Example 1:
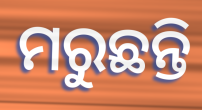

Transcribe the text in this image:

ମରୁଛନ୍ତି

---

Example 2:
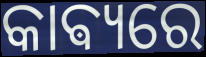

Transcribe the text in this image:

କାଵ୍ଯରେ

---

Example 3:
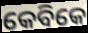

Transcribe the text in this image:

କେବିକେ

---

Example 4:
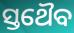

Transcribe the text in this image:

ସ୍ତଥୈବ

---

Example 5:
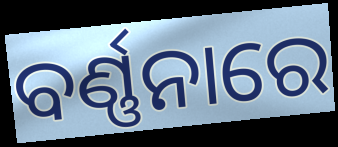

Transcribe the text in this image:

ବର୍ଣ୍ଣନାରେ